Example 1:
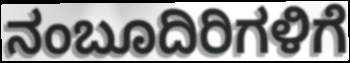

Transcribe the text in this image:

ನಂಬೂದಿರಿಗಳಿಗೆ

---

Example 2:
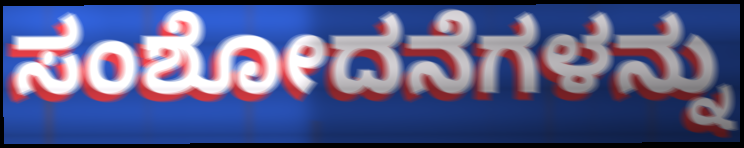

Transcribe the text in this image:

ಸಂಶೋದನೆಗಳನ್ನು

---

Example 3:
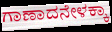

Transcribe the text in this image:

ಗಾಣಾದನೇಳಕ್ಕಾ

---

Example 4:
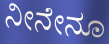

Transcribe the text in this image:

ನೀನೇನೂ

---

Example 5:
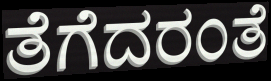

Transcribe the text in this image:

ತೆಗೆದರಂತೆ